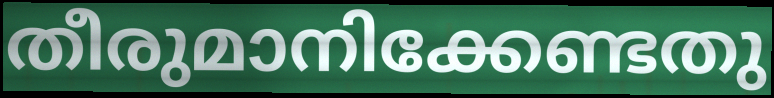
തീരുമാനിക്കേണ്ടതു